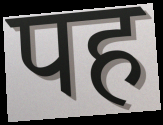
पह